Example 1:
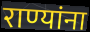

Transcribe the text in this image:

राण्यांना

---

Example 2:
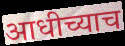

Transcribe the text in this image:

आधीच्याच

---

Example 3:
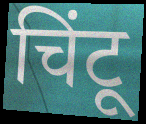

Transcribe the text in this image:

चिंटू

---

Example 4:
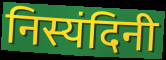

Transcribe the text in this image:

निस्यंदिनी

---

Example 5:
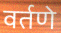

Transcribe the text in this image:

वर्तणे